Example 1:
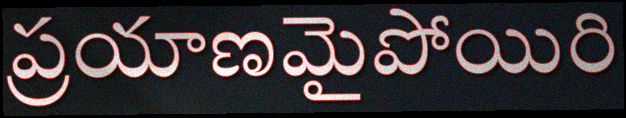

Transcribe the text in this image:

ప్రయాణమైపోయిరి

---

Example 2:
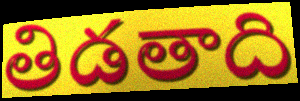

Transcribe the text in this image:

తిడతాది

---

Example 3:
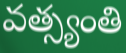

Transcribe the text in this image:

వత్స్యంతి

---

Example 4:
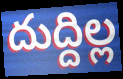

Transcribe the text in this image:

దుద్దిల్ల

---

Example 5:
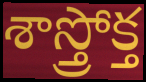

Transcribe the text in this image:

శాస్త్రోక్త